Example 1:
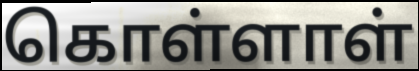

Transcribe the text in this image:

கொள்ளாள்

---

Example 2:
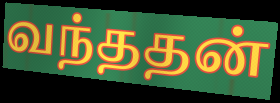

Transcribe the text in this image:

வந்ததன்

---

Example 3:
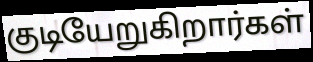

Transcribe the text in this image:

குடியேறுகிறார்கள்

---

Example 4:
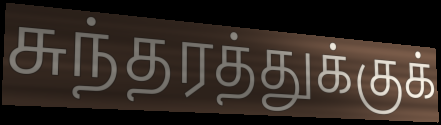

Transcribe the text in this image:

சுந்தரத்துக்குக்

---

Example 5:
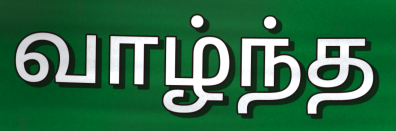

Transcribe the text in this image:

வாழ்ந்த